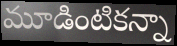
మూడింటికన్నా